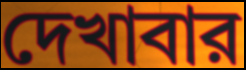
দেখাবার